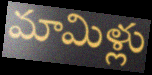
మామిళ్లు